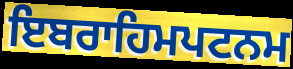
ਇਬਰਾਹਿਮਪਟਨਮ